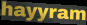
hayyram